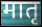
मातृ